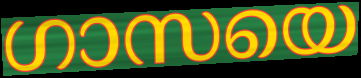
ഗാസയെ